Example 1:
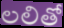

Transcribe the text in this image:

లలితో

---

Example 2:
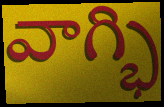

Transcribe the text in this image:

వాగ్భి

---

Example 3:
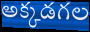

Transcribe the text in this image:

అక్కడగల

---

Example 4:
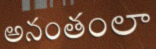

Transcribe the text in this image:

అనంతంలా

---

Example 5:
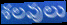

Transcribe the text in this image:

శలవులు